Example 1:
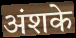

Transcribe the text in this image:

अंशके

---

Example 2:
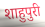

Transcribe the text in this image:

शाहुपुरी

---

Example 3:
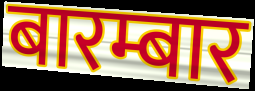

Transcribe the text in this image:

बारम्‍बार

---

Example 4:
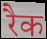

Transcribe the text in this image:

रैक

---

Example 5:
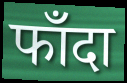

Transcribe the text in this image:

फाँदा